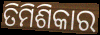
ତିମିଶିକାର